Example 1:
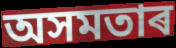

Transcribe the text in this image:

অসমতাৰ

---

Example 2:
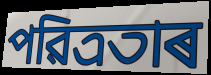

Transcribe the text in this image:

পৱিত্ৰতাৰ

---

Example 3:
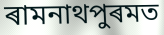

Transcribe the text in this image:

ৰামনাথপুৰমত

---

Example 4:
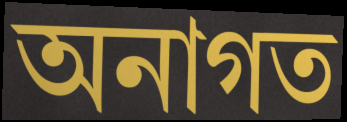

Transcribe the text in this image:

অনাগত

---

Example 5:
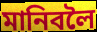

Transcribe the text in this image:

মানিবলৈ